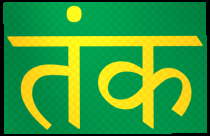
तंक